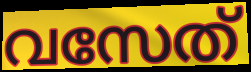
വസേത്